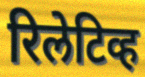
रिलेटिव्ह